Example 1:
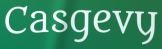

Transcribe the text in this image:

Casgevy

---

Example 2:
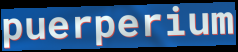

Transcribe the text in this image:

puerperium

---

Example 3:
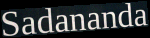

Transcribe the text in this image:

Sadananda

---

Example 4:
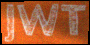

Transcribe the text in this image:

JWT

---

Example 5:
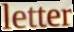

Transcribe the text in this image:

letter